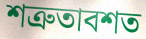
শত্রুতাবশত